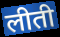
लीती